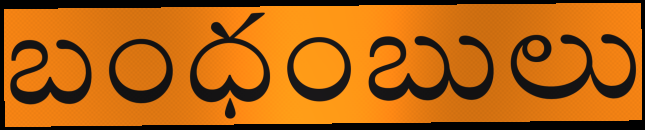
బంధంబులు